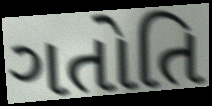
ગતોતિ